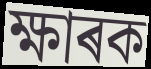
ক্ষাৰক